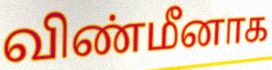
விண்மீனாக